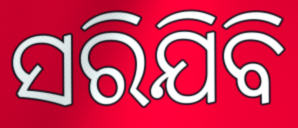
ସରିଯିବି